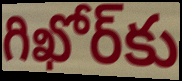
గిఖోర్‌కు